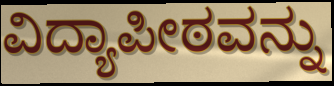
ವಿದ್ಯಾಪೀಠವನ್ನು